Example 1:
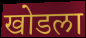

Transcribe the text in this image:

खोडला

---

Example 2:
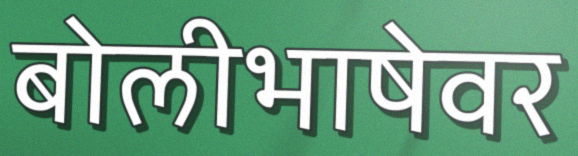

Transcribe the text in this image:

बोलीभाषेवर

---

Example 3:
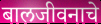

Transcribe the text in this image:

बालजीवनाचे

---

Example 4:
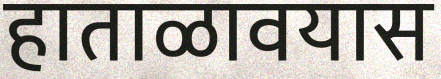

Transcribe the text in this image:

हाताळावयास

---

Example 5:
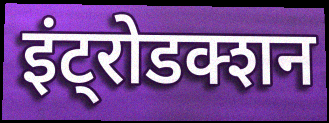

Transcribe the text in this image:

इंट्रोडक्शन